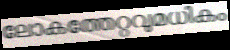
ലോകത്തേറ്റവുമധികം